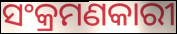
ସଂକ୍ରମଣକାରୀ